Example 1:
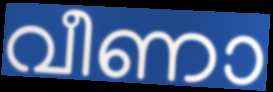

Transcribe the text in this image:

വീണാ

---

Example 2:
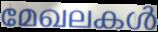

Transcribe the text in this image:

മേഖലകൾ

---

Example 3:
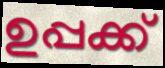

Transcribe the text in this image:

ഉപ്പക്ക്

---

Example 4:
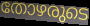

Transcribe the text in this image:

തോഴരുടെ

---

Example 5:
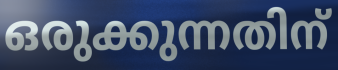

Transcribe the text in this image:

ഒരുക്കുന്നതിന്